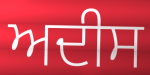
ਅਦੀਸ